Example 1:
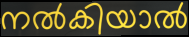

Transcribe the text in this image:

നൽകിയാൽ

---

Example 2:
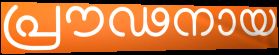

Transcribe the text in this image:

പ്രൗഢനായ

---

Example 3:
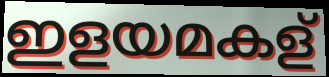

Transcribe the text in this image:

ഇളയമകള്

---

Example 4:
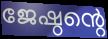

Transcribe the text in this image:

ജേഷ്ഠന്റെ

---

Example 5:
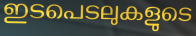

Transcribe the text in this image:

ഇടപെടലുകളുടെ